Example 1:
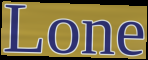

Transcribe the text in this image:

Lone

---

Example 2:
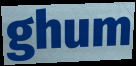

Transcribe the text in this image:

ghum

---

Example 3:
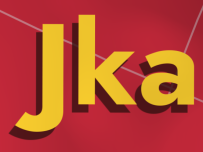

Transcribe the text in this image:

Jka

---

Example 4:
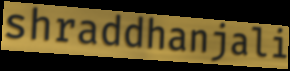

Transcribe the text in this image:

shraddhanjali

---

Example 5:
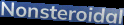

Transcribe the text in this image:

Nonsteroidal